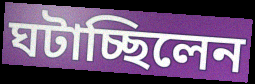
ঘটাচ্ছিলেন